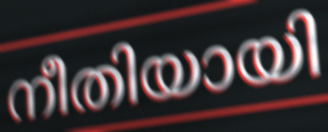
നീതിയായി